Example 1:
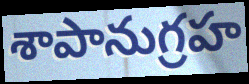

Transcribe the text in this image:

శాపానుగ్రహ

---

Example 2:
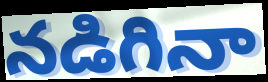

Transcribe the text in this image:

నడిగినా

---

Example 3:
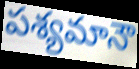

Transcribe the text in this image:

పశ్యమానౌ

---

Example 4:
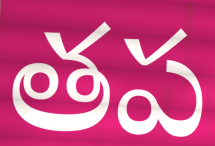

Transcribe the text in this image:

తప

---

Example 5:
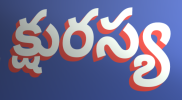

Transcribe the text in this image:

క్షురస్య